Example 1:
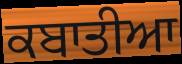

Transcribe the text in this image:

ਕਬਾਤੀਆ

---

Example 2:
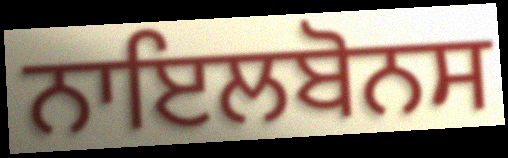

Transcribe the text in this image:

ਨਾਇਲਬੋਨਸ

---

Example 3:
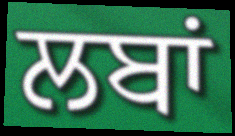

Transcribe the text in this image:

ਲਬਾਂ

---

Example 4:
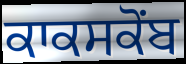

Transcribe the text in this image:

ਕਾਕਸਕੋਂਬ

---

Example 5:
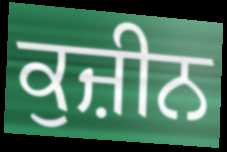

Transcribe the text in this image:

ਕੁਜ਼ੀਨ